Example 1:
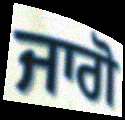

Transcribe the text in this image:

ਜਾਗੋ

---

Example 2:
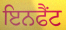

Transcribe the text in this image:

ਇਨਫੈਂਟ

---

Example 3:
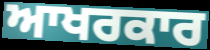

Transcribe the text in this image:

ਆਖਰਕਾਰ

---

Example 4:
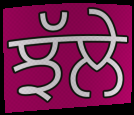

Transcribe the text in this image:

ਝੱਲੇ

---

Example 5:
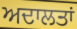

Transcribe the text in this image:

ਅਦਾਲਤਾਂ